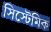
সিস্টেমিক